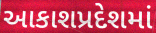
આકાશપ્રદેશમાં